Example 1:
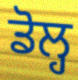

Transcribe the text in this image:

ਡੋਲ੍ਹ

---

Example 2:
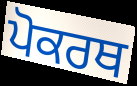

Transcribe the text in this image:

ਪੋਕਰਥ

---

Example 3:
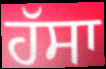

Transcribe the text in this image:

ਹੱਸਾ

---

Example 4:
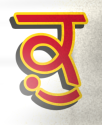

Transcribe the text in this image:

ਕ਼ੁ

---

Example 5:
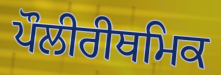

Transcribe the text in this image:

ਪੌਲੀਰੀਥਮਿਕ